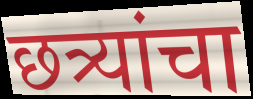
छत्र्यांचा